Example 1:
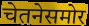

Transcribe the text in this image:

चेतनेसमोर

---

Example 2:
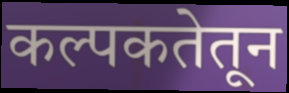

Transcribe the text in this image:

कल्पकतेतून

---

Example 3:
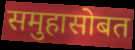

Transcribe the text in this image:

समुहासोबत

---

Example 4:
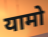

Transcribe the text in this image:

यामो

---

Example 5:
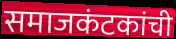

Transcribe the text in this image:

समाजकंटकांची